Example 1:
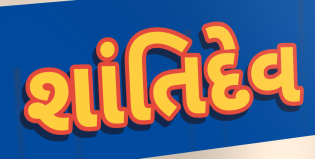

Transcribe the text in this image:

શાંતિદેવ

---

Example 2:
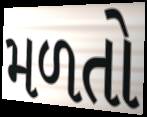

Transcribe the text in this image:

મળતો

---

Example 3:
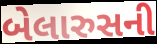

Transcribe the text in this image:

બેલારુસની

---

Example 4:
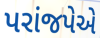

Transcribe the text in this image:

પરાંજપેએ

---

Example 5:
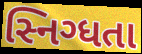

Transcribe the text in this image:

સ્નિગ્ધતા